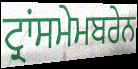
ਟ੍ਰਾਂਸਮੇਮਬਰੇਨ